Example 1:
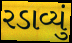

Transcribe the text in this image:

રડાવ્યું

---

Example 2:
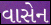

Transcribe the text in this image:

વાસેન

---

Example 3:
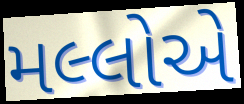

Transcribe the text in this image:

મલ્લોએ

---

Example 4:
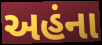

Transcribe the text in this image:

અહંના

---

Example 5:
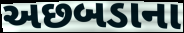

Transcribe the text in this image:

અછબડાના